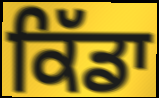
ਕਿੱਡਾ